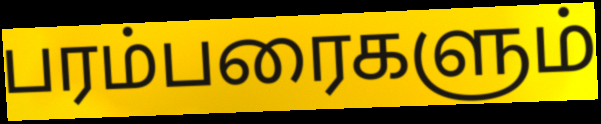
பரம்பரைகளும்